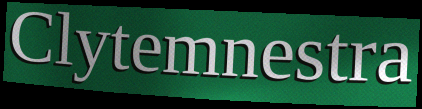
Clytemnestra